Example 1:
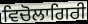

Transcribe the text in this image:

ਵਿਚੋਲਾਗਿਰੀ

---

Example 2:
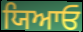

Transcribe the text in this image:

ਯਿਆਓ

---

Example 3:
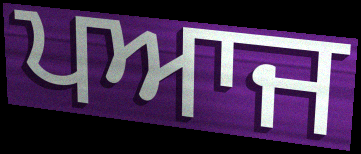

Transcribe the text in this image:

ਪਆਜ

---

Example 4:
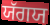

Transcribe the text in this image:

ਯੱਗਯ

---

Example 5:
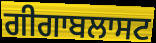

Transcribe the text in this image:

ਗੀਗਾਬਲਾਸਟ